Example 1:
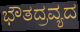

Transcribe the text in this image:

ಭೌತದ್ರವ್ಯದ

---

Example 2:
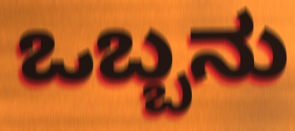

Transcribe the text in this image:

ಒಬ್ಬನು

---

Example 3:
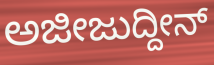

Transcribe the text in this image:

ಅಜೀಜುದ್ದೀನ್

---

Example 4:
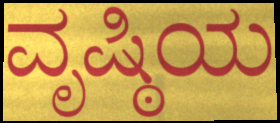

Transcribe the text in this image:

ವೃಷ್ಠಿಯ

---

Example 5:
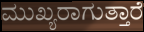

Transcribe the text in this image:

ಮುಖ್ಯರಾಗುತ್ತಾರೆ